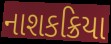
નાશકક્રિયા